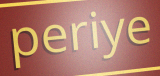
periye